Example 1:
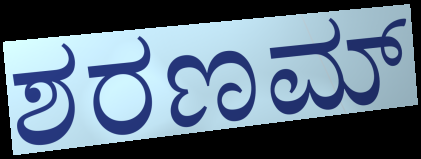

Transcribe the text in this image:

ಶರಣಮ್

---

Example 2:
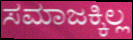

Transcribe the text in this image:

ಸಮಾಜಕ್ಕಿಲ್ಲ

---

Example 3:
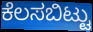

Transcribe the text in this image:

ಕೆಲಸಬಿಟ್ಟು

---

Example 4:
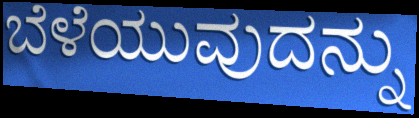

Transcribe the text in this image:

ಬೆಳೆಯುವುದನ್ನು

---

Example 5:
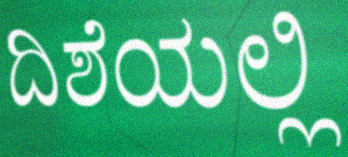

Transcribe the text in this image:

ದಿಶೆಯಲ್ಲಿ